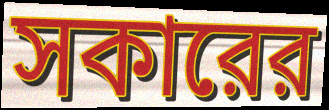
সকারের